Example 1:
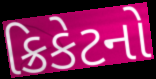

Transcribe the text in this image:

ક્રિકેટનો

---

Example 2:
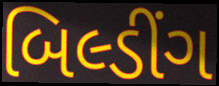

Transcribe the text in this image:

બિલ્ડીંગ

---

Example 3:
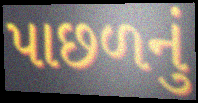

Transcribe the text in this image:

પાછળનું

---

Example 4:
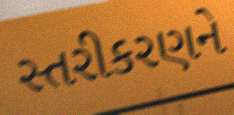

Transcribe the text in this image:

સ્તરીકરણને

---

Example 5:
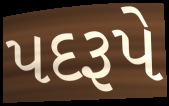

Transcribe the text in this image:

પદરૂપે